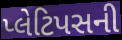
પ્લેટિપસની